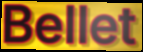
Bellet